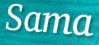
Sama